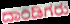
ದಾಂಡಿಗರು